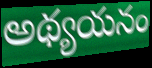
అథ్యయనం